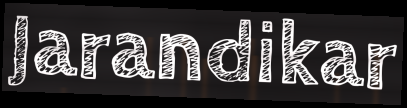
Jarandikar